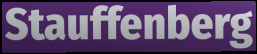
Stauffenberg